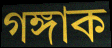
গঙ্গাক